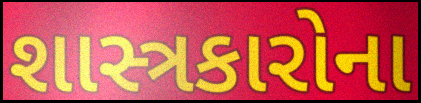
શાસ્ત્રકારોના